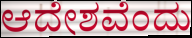
ಆದೇಶವೆಂದು